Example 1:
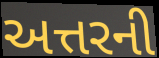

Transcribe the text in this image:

અત્તરની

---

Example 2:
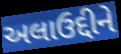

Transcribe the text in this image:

અલાઉદ્દીને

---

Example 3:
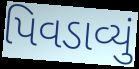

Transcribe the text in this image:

પિવડાવ્યું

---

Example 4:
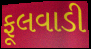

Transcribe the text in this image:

ફૂલવાડી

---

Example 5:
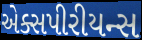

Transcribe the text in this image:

એક્સપીરીયન્સ